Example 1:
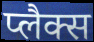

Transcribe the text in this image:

प्लैक्स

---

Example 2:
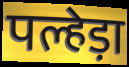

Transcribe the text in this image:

पल्हेड़ा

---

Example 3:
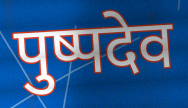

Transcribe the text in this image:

पुष्पदेव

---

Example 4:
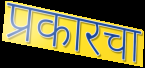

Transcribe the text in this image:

प्रकारचा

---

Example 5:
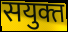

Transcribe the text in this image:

सयुक्‍त